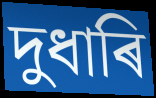
দুধাৰি